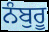
ਨੰਬੁਰੂ